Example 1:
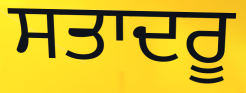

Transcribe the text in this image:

ਸਤਾਦਰੂ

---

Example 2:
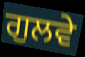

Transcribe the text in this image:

ਗੁਲਵੇ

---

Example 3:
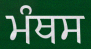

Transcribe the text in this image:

ਮੰਥਸ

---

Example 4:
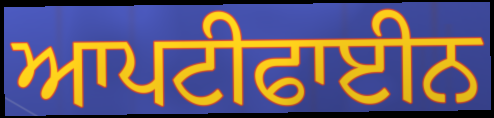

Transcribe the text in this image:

ਆਪਟੀਫਾਈਨ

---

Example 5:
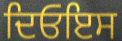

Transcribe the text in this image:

ਦਿਓਇਸ